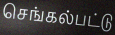
செங்கல்பட்டு